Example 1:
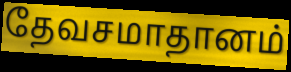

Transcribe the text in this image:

தேவசமாதானம்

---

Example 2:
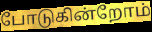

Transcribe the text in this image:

போடுகின்றோம்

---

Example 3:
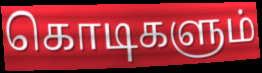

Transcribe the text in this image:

கொடிகளும்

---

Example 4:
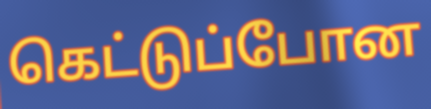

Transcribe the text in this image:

கெட்டுப்போன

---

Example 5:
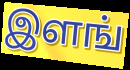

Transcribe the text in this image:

இளங்